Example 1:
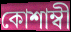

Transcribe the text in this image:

কোশাম্বী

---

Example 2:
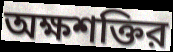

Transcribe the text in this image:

অক্ষশক্তির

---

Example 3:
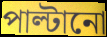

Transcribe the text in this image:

পাল্টানো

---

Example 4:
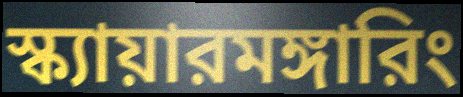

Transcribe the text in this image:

স্ক্যায়ারমঙ্গারিং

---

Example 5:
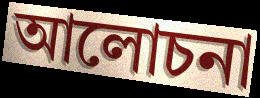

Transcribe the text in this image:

আলোচনা